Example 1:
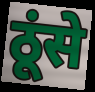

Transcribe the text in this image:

ठूंसे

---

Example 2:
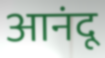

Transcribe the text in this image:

आनंदू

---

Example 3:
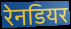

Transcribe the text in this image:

रेनडियर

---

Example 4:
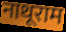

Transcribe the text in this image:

नाथूराम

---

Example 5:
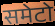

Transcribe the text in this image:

समेटो